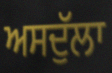
ਅਸਦੁੱਲਾ